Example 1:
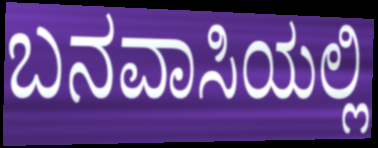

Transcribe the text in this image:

ಬನವಾಸಿಯಲ್ಲಿ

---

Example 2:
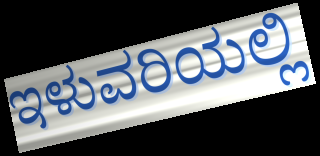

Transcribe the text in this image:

ಇಳುವರಿಯಲ್ಲಿ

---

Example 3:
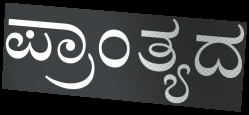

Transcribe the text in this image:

ಪ್ರಾಂತ್ಯದ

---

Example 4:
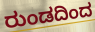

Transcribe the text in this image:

ರುಂಡದಿಂದ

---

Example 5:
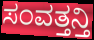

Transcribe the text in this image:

ಸಂವತ್ತನ್ತಿ